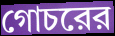
গোচরের